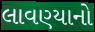
લાવણ્યાનો